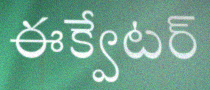
ఈక్వేటర్